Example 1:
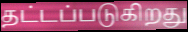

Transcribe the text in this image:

தட்டப்படுகிறது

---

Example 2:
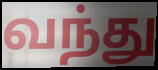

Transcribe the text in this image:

வந்து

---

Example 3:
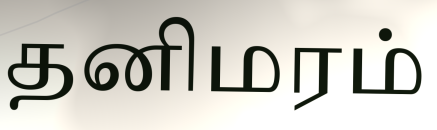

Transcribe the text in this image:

தனிமரம்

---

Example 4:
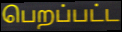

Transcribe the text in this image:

பெறப்பட்ட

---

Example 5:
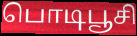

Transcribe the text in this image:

பொடிபூசி